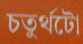
চতুৰ্থটো